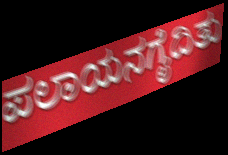
ಪಲಾಯನಗೈದಿತು